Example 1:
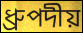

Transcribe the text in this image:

ধ্রুপদীয়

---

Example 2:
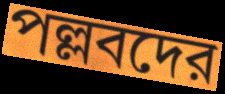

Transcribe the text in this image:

পল্লবদের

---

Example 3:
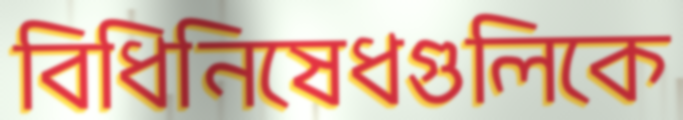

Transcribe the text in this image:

বিধিনিষেধগুলিকে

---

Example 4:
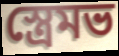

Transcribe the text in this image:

স্ত্রেমভ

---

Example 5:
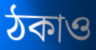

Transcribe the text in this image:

ঠকাও